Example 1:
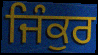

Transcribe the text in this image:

ਜਿੰਕੁਰ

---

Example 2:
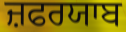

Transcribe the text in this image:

ਜ਼ਫਰਯਾਬ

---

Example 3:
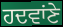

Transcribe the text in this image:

ਹਦਵਾਂਣੇ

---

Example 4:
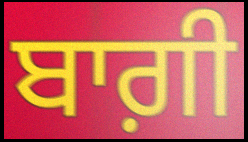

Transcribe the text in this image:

ਬਾਗ਼ੀ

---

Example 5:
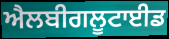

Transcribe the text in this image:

ਐਲਬੀਗਲੂਟਾਈਡ